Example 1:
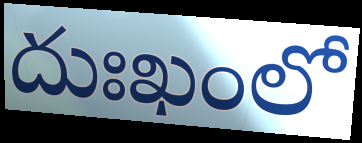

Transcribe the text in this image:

దుఃఖంలో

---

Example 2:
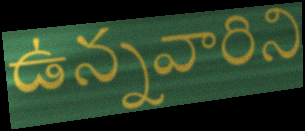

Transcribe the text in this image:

ఉన్నవారిని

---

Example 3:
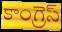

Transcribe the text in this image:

కాంగ్రెస్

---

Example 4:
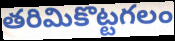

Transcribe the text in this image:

తరిమికొట్టగలం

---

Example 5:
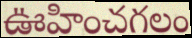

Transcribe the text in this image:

ఊహించగలం